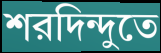
শরদিন্দুতে